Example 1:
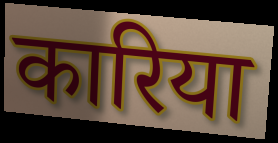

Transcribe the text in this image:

कारिया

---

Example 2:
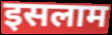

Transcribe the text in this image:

इसलाम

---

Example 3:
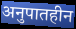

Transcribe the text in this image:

अनुपातहीन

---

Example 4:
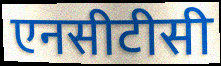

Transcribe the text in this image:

एनसीटीसी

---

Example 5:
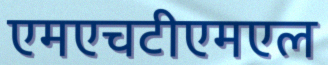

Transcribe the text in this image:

एमएचटीएमएल